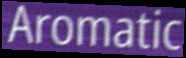
Aromatic